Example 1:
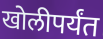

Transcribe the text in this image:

खोलीपर्यंत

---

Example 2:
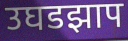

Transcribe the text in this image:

उघडझाप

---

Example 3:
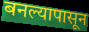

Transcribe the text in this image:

बनल्यापासून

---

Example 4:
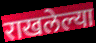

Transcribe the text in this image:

राखलेल्या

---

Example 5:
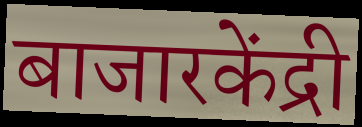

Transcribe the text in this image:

बाजारकेंद्री